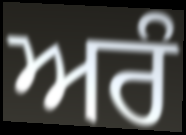
ਅਰੰ